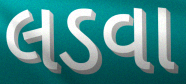
લડવા